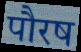
पौरष